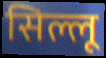
सिल्लू